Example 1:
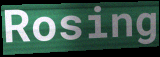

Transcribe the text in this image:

Rosing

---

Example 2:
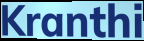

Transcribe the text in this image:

Kranthi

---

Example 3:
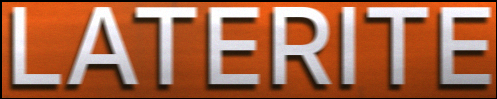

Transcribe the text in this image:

LATERITE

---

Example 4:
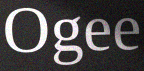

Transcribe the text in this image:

Ogee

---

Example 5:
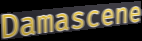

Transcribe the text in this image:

Damascene